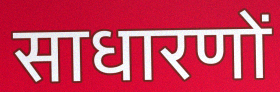
साधारणों